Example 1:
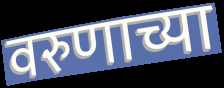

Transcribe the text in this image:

वरुणाच्या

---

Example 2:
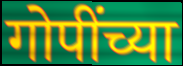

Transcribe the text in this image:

गोपींच्या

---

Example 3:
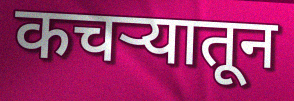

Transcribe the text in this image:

कचर्‍यातून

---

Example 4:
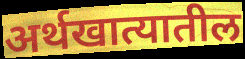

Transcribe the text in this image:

अर्थखात्यातील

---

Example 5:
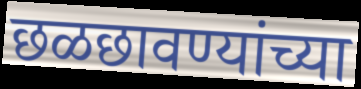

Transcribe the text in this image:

छळछावण्यांच्या